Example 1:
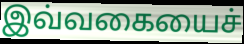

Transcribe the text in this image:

இவ்வகையைச்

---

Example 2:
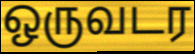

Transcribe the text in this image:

ஒருவடர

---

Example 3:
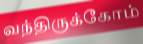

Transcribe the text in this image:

வந்திருக்கோம்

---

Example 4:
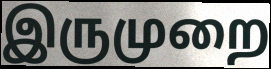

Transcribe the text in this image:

இருமுறை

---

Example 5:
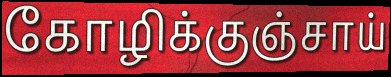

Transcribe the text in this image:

கோழிக்குஞ்சாய்